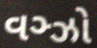
વઞ્ઝો